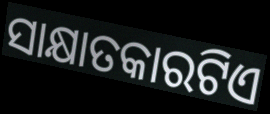
ସାକ୍ଷାତକାରଟିଏ